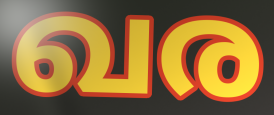
ഖര